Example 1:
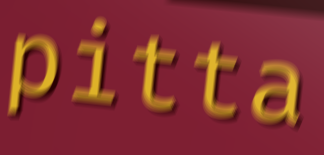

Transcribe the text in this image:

pitta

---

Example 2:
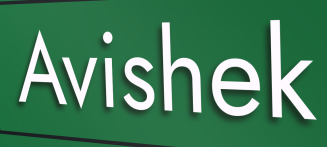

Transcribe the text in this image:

Avishek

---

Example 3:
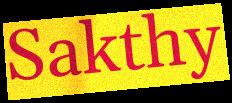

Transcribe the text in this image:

Sakthy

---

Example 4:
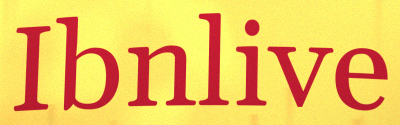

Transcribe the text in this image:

Ibnlive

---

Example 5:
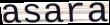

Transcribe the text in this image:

asara